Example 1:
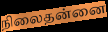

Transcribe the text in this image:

நிலைதன்னை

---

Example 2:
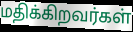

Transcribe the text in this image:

மதிக்கிறவர்கள்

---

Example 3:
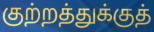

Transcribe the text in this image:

குற்றத்துக்குத்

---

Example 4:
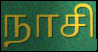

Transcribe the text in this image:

நாசி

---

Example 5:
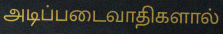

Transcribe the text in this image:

அடிப்படைவாதிகளால்